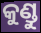
କୁଣ୍ଡୁ